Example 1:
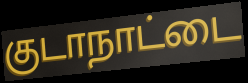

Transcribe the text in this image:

குடாநாட்டை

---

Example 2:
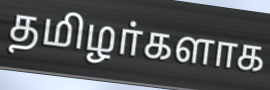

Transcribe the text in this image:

தமிழர்களாக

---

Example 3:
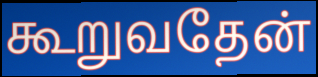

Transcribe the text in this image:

கூறுவதேன்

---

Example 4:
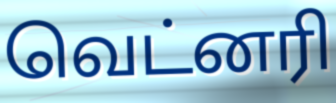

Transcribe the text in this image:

வெட்னரி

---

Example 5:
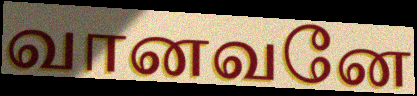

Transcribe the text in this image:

வானவனே